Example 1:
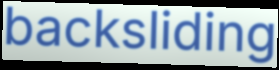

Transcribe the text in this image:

backsliding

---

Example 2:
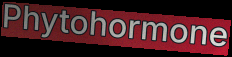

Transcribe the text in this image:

Phytohormone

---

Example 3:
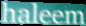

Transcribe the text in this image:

haleem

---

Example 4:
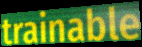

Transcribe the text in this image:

trainable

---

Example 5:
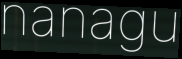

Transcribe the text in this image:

nanagu